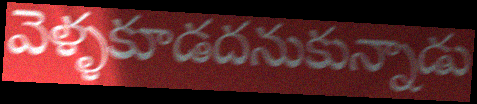
వెళ్ళకూడదనుకున్నాడు